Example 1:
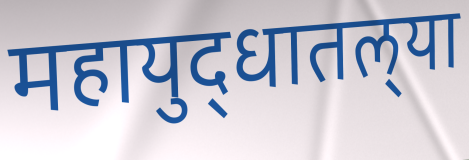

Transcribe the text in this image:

महायुद्धातल्या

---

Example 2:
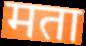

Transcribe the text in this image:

मता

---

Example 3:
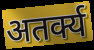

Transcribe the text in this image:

अतर्क्य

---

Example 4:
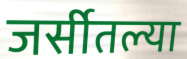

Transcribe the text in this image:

जर्सीतल्या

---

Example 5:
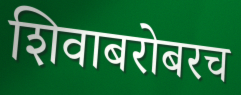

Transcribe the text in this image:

शिवाबरोबरच